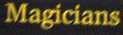
Magicians